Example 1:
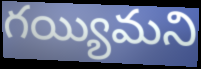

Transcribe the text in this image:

గయ్యిమని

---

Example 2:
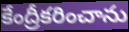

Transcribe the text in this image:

కేంద్రీకరించాను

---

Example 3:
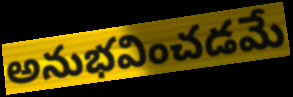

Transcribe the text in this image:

అనుభవించడమే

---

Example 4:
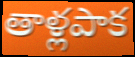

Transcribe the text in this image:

తాళ్లపాక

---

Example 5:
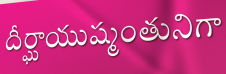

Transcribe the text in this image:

దీర్ఘాయుష్మంతునిగా